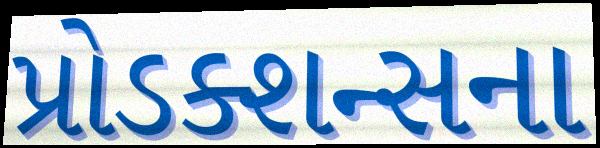
પ્રોડક્શન્સના